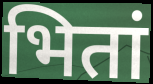
भितां